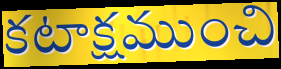
కటాక్షముంచి